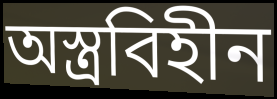
অস্ত্রবিহীন